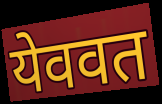
येववत